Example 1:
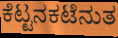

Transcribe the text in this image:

ಕೆಟ್ಟನಕಟೆನುತ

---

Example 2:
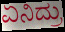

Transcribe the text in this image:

ಏನಿದ್ರು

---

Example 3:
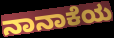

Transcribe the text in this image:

ನಾನಾಕೆಯ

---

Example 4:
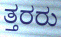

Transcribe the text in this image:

ತ್ತರರು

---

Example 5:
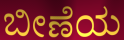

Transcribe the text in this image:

ಬೀಣೆಯ